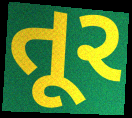
તૂર